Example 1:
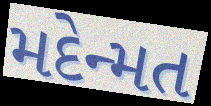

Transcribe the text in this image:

મદેન્મત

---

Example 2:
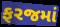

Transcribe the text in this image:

ફરજમાં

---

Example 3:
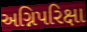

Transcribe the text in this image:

અગ્નિપરિક્ષા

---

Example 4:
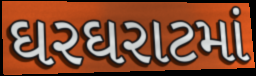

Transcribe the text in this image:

ઘરઘરાટમાં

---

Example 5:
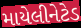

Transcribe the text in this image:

માયેલીનેટેડ